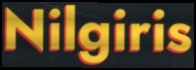
Nilgiris